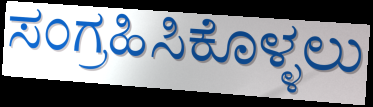
ಸಂಗ್ರಹಿಸಿಕೊಳ್ಳಲು